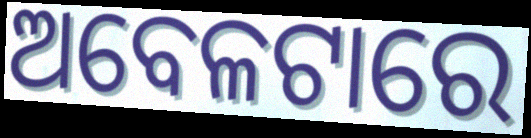
ଅବେଳଟାରେ